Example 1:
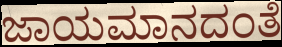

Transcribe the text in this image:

ಜಾಯಮಾನದಂತೆ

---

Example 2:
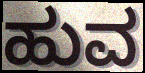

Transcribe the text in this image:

ಹುವ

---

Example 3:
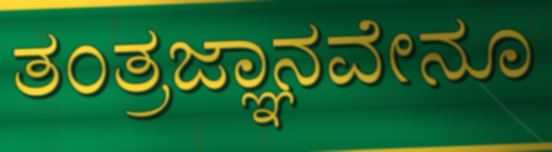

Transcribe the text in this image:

ತಂತ್ರಜ್ಞಾನವೇನೂ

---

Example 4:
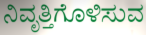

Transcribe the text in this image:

ನಿವೃತ್ತಿಗೊಳಿಸುವ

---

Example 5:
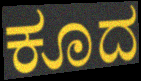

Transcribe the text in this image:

ಕೂದ